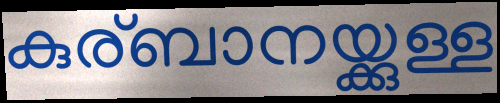
കുര്ബാനയ്ക്കുള്ള